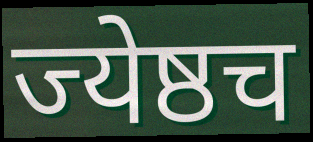
ज्येष्ठच